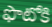
ఫొటోకి